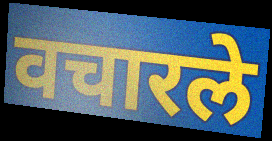
वचारले